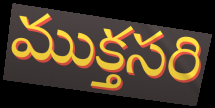
ముక్తసరి